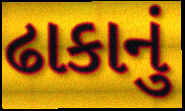
ઢાકાનું